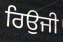
ਰਿਉਜੀ